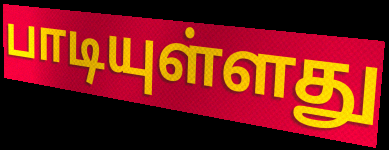
பாடியுள்ளது